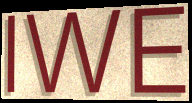
IWE